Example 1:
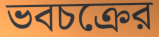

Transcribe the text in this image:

ভবচক্রের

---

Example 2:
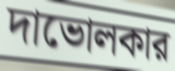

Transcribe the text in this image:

দাভোলকার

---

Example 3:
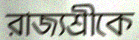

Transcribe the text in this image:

রাজ্যশ্রীকে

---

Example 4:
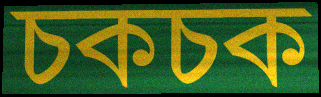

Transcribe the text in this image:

চকচক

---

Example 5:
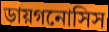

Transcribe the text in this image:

ডায়গনোসিস